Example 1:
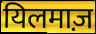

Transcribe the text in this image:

यिलमाज़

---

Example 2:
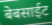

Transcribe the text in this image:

बेबसाईट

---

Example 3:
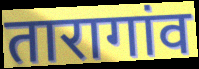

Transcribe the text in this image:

तारागांव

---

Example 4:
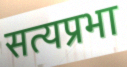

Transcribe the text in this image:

सत्यप्रभा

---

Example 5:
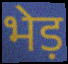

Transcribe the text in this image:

भेड़